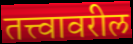
तत्त्वावरील